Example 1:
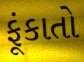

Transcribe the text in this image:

ફૂંકાતો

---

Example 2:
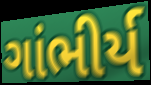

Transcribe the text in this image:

ગાંભીર્ય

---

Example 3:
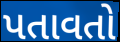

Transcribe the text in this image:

પતાવતો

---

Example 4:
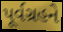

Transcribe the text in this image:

પૂર્વગ્રહને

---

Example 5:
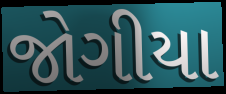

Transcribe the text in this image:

જોગીયા